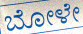
ಬೋಳೇ